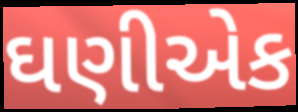
ઘણીએક